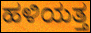
ಹಳಿಯತ್ತ